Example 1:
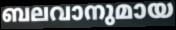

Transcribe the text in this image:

ബലവാനുമായ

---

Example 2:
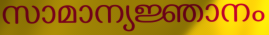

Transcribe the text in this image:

സാമാന്യജ്ഞാനം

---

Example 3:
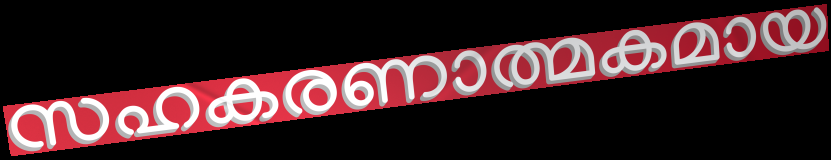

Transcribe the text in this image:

സഹകരണാത്മകമായ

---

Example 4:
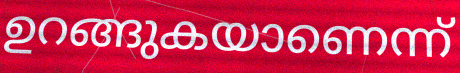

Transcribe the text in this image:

ഉറങ്ങുകയാണെന്ന്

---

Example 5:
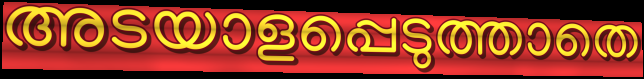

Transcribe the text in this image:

അടയാളപ്പെടുത്താതെ